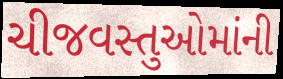
ચીજવસ્તુઓમાંની